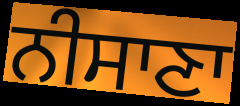
ਨੀਸਾਣਾ